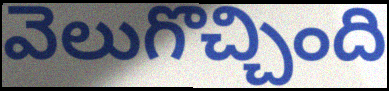
వెలుగొచ్చింది